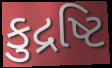
કુદ્રષ્ટિ